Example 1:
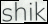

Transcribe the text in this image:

shik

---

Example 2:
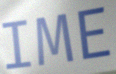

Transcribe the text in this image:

IME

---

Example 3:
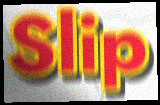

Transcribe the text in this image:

Slip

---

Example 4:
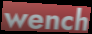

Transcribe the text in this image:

wench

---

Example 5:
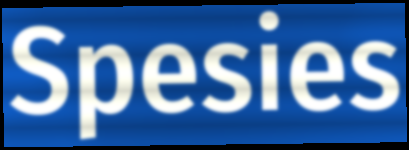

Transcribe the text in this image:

Spesies